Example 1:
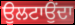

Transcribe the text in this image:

ਉਲਟਾਉਂਦਾ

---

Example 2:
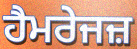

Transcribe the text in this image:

ਹੈਮਰੇਜਜ਼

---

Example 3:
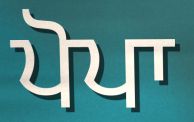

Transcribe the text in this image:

ਪੋਪਾ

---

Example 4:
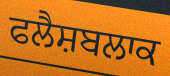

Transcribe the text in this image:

ਫਲੈਸ਼ਬਲਾਕ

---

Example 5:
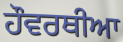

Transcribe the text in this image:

ਹੌਵਰਥੀਆ